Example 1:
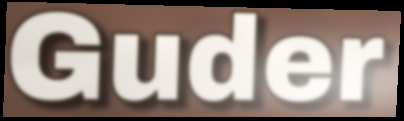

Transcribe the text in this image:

Guder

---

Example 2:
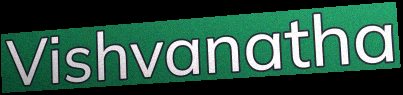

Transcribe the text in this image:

Vishvanatha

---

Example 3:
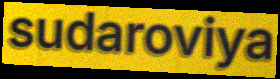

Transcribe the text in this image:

sudaroviya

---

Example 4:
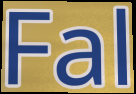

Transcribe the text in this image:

Fal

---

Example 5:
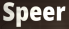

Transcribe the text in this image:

Speer